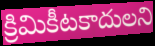
క్రిమికీటకాదులని